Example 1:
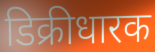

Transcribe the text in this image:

डिक्रीधारक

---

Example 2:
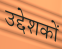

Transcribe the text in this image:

उद्देशकों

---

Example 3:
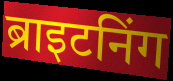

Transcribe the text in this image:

ब्राइटनिंग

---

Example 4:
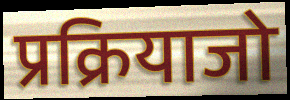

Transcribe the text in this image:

प्रक्रियाजो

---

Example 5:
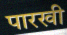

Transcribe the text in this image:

पारखी